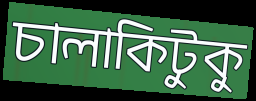
চালাকিটুকু